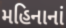
મહિનાનાં